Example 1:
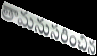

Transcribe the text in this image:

తామనుసరించిన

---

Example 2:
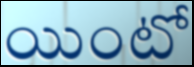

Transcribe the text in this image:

యింటో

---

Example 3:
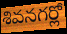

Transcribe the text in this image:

శివనగర్లో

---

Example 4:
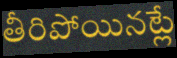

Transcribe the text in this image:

తీరిపోయినట్లే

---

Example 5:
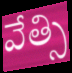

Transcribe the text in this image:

వేత్సి